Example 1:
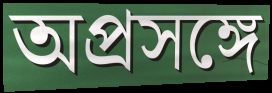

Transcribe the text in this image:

অপ্রসঙ্গে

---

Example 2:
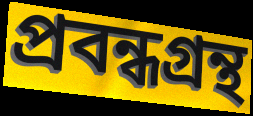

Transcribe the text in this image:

প্রবন্ধগ্রন্থ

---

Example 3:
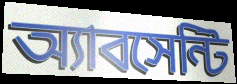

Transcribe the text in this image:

অ্যাবসেন্টি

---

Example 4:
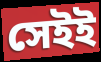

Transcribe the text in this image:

সেইই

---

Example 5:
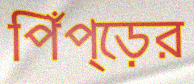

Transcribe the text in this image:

পিঁপ্‌ড়ের